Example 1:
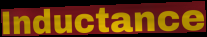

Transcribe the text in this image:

Inductance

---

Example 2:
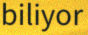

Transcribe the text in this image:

biliyor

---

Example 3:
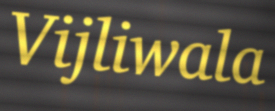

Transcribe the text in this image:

Vijliwala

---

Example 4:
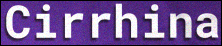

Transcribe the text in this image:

Cirrhina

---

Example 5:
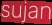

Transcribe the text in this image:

sujan